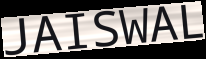
JAISWAL